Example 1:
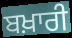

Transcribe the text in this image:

ਬਖ਼ਾਰੀ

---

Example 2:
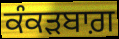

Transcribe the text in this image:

ਕੰਕੜਬਾਗ਼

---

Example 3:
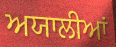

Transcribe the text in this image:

ਅਯਾਲੀਆਂ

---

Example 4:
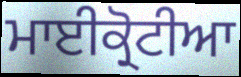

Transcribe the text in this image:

ਮਾਈਕ੍ਰੋਟੀਆ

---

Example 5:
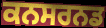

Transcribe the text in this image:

ਕਨਸਰਨਡ